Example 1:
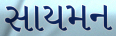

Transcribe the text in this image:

સાયમન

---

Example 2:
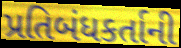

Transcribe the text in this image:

પ્રતિબંધકર્તાની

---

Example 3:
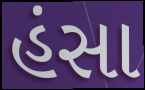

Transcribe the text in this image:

હંસા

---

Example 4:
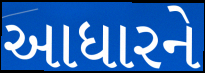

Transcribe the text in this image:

આધારને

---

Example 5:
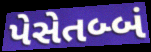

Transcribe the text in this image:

પેસેતબ્બં